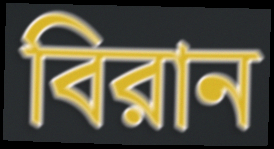
বিরান